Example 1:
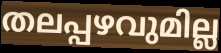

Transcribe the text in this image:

തലപ്പഴവുമില്ല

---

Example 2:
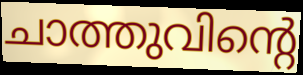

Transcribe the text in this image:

ചാത്തുവിന്റെ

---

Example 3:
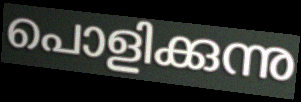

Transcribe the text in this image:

പൊളിക്കുന്നു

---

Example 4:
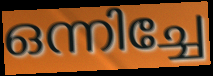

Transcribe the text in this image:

ഒന്നിച്ചേ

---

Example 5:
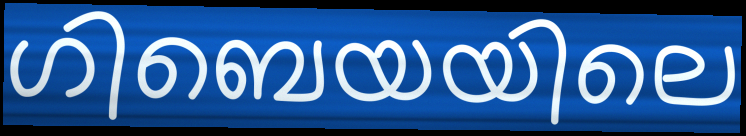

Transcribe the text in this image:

ഗിബെയയിലെ